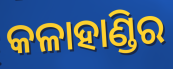
କଳାହାଣ୍ଡିର